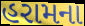
હરામના